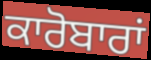
ਕਾਰੋਬਾਰਾਂ